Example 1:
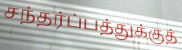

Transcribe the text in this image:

சந்தர்ப்பத்துக்குத்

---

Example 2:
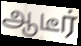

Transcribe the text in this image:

ஆடீர்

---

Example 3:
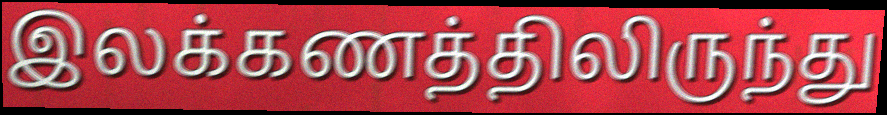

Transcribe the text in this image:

இலக்கணத்திலிருந்து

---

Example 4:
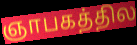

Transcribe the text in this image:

ஞாபகத்தில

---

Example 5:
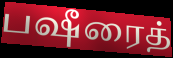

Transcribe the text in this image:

பஷீரைத்